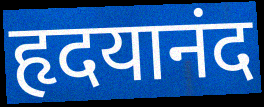
हृदयानंद